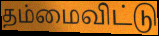
தம்மைவிட்டு